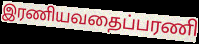
இரணியவதைப்பரணி